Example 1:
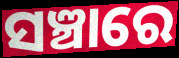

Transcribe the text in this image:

ସଞ୍ଚାରେ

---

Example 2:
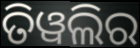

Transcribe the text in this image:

ତିୱଲିର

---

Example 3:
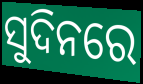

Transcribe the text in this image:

ସୁଦିନରେ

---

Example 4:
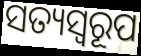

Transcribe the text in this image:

ସତ୍ୟସ୍ୱରୂପ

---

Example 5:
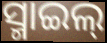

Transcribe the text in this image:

ସ୍ମାଇଲ୍